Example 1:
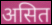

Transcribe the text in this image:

असित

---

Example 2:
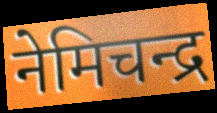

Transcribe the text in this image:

नेमिचन्द्र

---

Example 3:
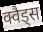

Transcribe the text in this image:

क्वैड्स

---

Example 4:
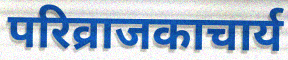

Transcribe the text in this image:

परिव्राजकाचार्य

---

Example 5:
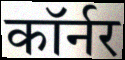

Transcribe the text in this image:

कॉर्नर